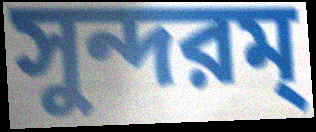
সুন্দরম্